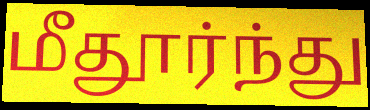
மீதூர்ந்து